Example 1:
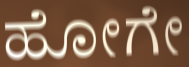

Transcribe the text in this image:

ಹೋಗೇ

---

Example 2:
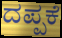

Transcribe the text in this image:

ದಪ್ಪಕೆ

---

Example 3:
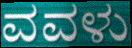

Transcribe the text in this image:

ವವಳು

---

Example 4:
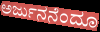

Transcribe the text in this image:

ಅರ್ಜುನನೆಂದೂ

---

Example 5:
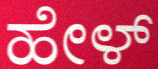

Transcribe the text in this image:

ಹೇಳ್